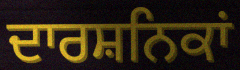
ਦਾਰਸ਼ਨਿਕਾਂ